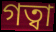
গত্বা